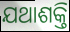
ଯଥାଶକ୍ତି